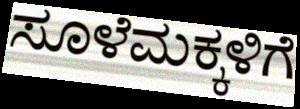
ಸೂಳೆಮಕ್ಕಳಿಗೆ